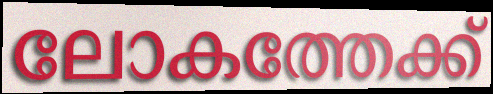
ലോകത്തേക്ക്